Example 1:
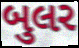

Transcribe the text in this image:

બુલર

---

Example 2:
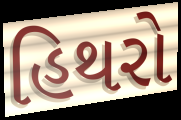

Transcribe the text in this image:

હિથરો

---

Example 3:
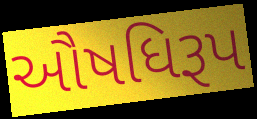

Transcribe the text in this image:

ઔષધિરૂપ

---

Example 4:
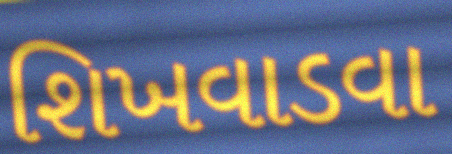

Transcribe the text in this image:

શિખવાડવા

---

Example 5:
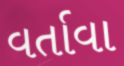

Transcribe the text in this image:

વર્તાવા